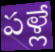
పళ్లే